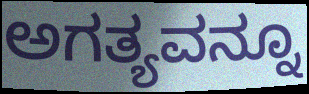
ಅಗತ್ಯವನ್ನೂ